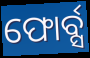
ଫୋର୍ବ୍ସ